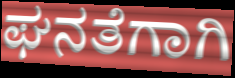
ಘನತೆಗಾಗಿ